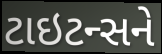
ટાઇટન્સને